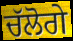
ਚੱਲੋਗੇ